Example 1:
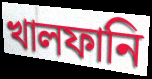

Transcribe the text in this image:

খালফানি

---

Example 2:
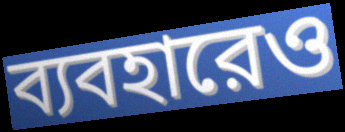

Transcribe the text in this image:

ব্যবহারেও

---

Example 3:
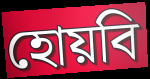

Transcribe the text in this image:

হোয়বি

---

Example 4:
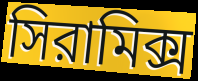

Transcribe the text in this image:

সিরামিক্স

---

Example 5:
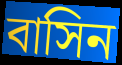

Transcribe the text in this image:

বাসিন